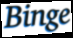
Binge